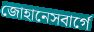
জোহানেসবার্গে